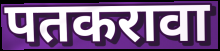
पतकरावा